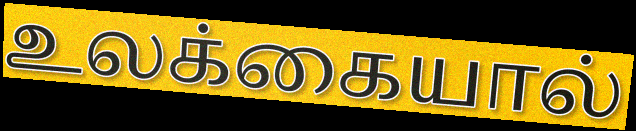
உலக்கையால்